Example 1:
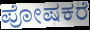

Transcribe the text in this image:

ಪೋಷಕರೆ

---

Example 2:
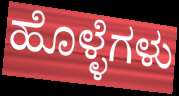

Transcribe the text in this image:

ಹೊಳ್ಳೆಗಳು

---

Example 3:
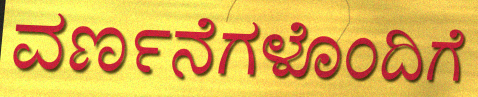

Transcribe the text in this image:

ವರ್ಣನೆಗಳೊಂದಿಗೆ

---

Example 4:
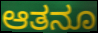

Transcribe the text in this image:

ಆತನೂ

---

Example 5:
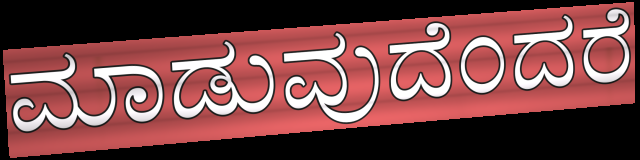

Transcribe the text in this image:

ಮಾಡುವುದೆಂದರೆ